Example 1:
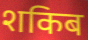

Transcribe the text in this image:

शकिब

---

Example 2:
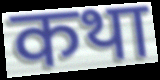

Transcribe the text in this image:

कथा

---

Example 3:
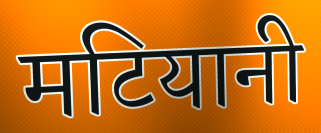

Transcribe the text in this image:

मटियानी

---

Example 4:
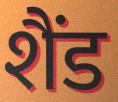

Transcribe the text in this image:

शैंड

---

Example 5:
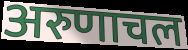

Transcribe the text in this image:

अरुणाचल